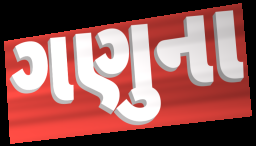
ગણુના